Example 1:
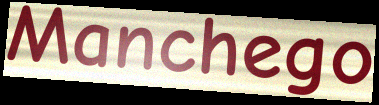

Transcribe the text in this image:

Manchego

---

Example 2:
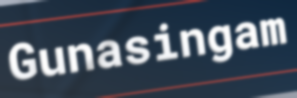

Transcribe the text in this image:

Gunasingam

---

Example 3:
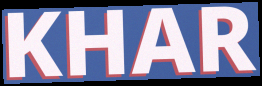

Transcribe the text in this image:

KHAR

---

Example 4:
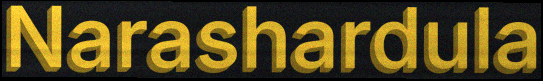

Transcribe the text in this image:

Narashardula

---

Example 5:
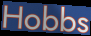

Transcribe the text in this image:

Hobbs